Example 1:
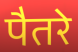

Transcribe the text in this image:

पैतरे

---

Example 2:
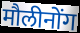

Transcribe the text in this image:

मौलीनोंग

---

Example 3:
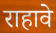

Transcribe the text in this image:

राहावे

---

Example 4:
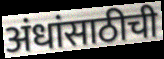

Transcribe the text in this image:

अंधांसाठीची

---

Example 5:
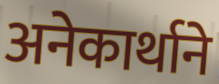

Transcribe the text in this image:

अनेकार्थाने